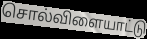
சொல்விளையாட்டு